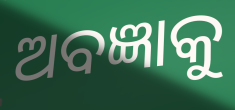
ଅବଜ୍ଞାକୁ